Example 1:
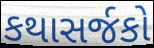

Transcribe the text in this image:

કથાસર્જકો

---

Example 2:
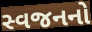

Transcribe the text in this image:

સ્વજનનો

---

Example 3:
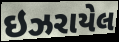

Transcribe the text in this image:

ઇઝરાયેલ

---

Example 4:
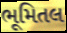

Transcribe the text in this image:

ભૂમિતલ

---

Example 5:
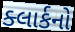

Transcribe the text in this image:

ક્લાર્કનો